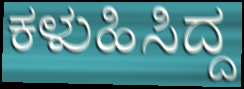
ಕಳುಹಿಸಿದ್ದ